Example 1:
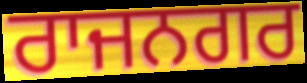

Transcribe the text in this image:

ਰਾਜਨਗਰ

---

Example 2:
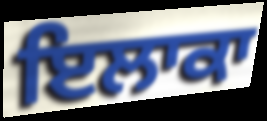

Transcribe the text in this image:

ਇਲਾਕਾ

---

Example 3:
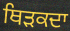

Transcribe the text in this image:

ਥਿੜਕਦਾ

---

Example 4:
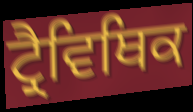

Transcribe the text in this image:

ਟ੍ਰੈਵਿਥਿਕ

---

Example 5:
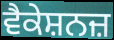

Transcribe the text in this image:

ਵੈਕੇਸ਼ਨਜ਼